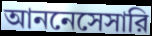
আননেসেসারি